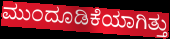
ಮುಂದೂಡಿಕೆಯಾಗಿತ್ತು